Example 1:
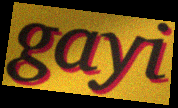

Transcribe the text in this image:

gayi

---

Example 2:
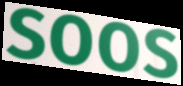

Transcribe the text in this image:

soos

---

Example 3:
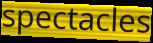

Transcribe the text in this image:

spectacles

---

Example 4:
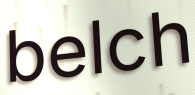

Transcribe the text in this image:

belch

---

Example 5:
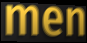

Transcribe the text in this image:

men